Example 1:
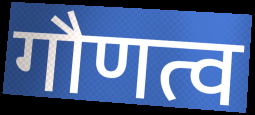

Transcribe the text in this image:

गौणत्व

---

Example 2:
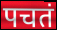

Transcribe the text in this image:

पचतं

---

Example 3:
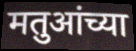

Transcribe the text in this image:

मतुआंच्या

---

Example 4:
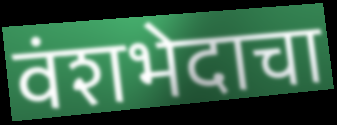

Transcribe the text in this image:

वंशभेदाचा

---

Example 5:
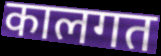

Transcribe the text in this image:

कालगत